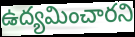
ఉద్యమించారని